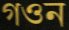
গওন